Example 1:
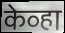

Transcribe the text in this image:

केव्हा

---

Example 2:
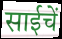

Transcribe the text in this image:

साईचें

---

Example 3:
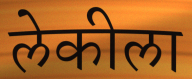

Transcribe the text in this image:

लेकीला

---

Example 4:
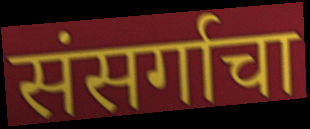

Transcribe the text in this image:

संसर्गाचा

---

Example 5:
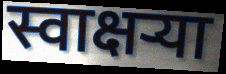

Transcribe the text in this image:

स्वाक्षऱ्या